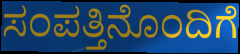
ಸಂಪತ್ತಿನೊಂದಿಗೆ